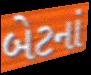
બેટનાં